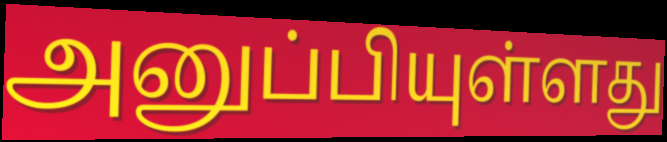
அனுப்பியுள்ளது